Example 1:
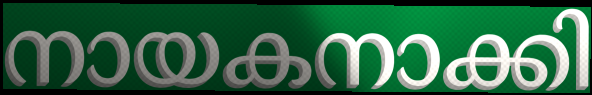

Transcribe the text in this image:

നായകനാക്കി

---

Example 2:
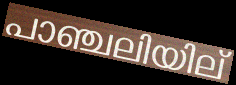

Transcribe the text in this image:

പാഞ്ചലിയില്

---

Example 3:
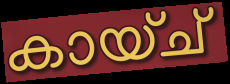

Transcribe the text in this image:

കായ്ച്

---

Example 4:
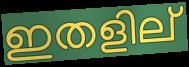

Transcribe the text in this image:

ഇതളില്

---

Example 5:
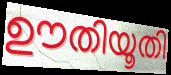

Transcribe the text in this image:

ഊതിയൂതി